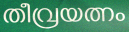
തീവ്രയത്നം